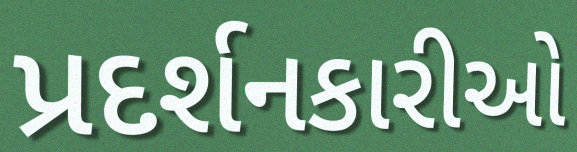
પ્રદર્શનકારીઓ